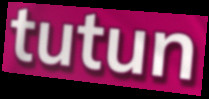
tutun